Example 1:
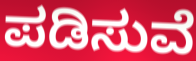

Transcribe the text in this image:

ಪಡಿಸುವೆ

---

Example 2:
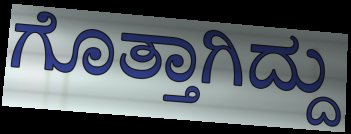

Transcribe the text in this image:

ಗೊತ್ತಾಗಿದ್ದು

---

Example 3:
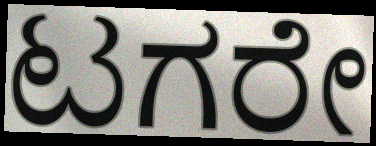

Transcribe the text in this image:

ಟಗರೇ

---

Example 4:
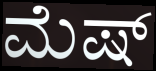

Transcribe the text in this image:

ಮೆಷ್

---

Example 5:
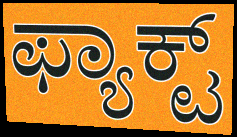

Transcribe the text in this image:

ಫ್ಯಾಕ್ಟ್